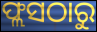
ଫ୍ଲସଠାରୁ